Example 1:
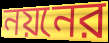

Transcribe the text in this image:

নয়নের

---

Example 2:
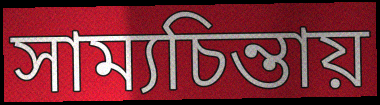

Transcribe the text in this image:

সাম্যচিন্তায়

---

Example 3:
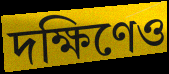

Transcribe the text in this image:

দক্ষিণেও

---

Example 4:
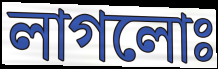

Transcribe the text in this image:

লাগলোঃ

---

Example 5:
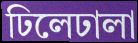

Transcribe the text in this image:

ঢিলেঢালা